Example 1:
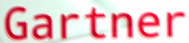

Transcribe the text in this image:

Gartner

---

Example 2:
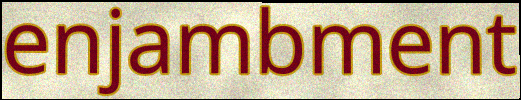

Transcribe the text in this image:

enjambment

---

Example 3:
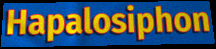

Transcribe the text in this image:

Hapalosiphon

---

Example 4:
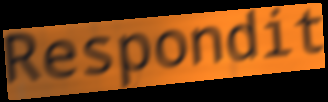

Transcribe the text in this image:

Respondit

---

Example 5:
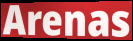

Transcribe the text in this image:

Arenas